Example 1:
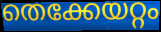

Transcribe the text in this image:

തെക്കേയറ്റം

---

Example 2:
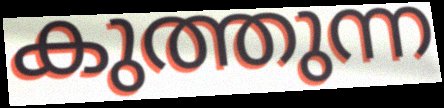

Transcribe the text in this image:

കുത്തുന്ന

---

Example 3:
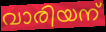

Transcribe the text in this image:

വാരിയന്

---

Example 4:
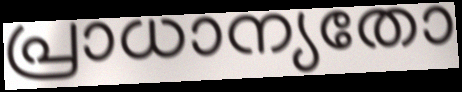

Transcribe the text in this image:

പ്രാധാന്യതോ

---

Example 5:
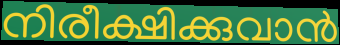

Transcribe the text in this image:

നിരീക്ഷിക്കുവാൻ